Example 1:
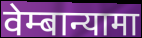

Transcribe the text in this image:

वेम्बान्यामा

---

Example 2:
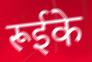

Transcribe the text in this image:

रूईके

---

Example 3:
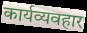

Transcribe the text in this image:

कार्यव्यवहार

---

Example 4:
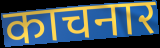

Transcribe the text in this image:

काचनार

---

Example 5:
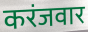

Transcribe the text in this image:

करंजवार